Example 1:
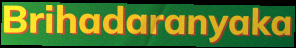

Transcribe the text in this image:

Brihadaranyaka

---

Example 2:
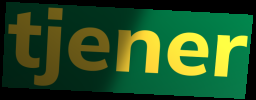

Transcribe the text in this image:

tjener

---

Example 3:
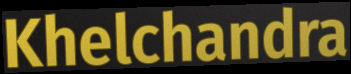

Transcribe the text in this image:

Khelchandra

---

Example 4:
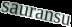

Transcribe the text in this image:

sauransu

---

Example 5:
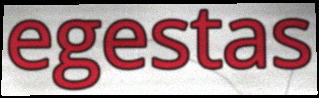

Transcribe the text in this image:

egestas